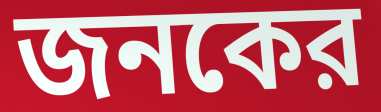
জনকের